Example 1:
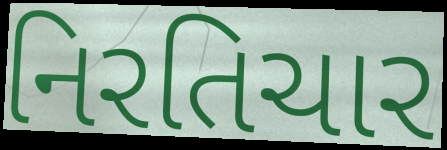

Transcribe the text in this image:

નિરતિચાર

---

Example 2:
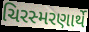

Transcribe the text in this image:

ચિરસ્મરણાર્થે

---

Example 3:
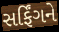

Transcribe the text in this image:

સર્ફિંગને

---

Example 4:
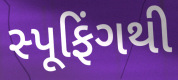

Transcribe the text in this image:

સ્પૂફિંગથી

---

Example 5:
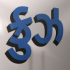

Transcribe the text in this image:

ક્રુઝ